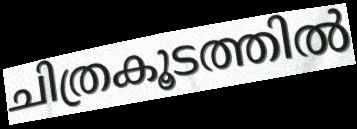
ചിത്രകൂടത്തിൽ